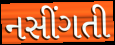
નસીંગતી